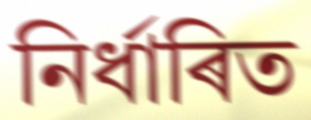
নিৰ্ধাৰিত